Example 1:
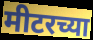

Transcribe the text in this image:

मीटरच्या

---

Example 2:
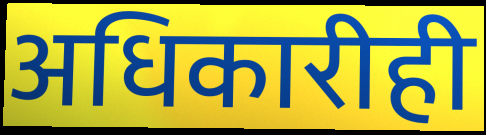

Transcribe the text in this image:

अधिकारीही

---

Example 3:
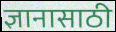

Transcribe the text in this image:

ज्ञानासाठी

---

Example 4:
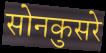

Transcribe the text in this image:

सोनकुसरे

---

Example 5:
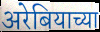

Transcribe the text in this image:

अरेबियाच्या